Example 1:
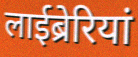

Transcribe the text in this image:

लाईब्रेरियां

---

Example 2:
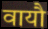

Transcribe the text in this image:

वायौ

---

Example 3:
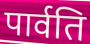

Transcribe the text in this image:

पार्वति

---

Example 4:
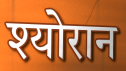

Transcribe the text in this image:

श्योरान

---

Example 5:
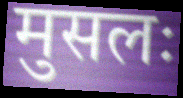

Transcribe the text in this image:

मुसलः